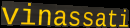
vinassati